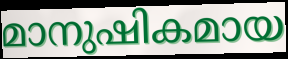
മാനുഷികമായ